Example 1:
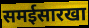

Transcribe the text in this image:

समईसारखा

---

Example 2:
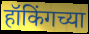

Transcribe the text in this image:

हॉकिंगच्या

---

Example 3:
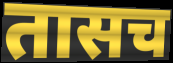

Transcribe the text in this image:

तासच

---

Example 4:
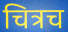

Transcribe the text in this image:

चित्रच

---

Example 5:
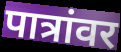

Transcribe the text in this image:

पात्रांवर